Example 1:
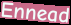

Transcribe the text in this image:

Ennead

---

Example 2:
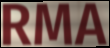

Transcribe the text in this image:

RMA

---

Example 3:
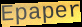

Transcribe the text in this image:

Epaper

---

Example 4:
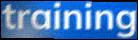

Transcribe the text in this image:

training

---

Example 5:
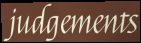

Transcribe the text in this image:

judgements